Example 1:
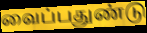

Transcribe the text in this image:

வைப்பதுண்டு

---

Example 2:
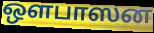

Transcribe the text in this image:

ஒளபாஸன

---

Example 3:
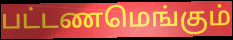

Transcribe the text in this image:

பட்டணமெங்கும்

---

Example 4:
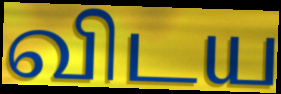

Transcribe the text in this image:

விடய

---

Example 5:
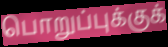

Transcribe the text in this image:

பொறுப்புக்குக்